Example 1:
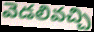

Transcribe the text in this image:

వెడలివచ్చి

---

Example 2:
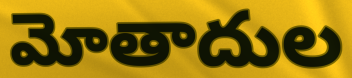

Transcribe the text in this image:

మోతాదుల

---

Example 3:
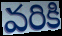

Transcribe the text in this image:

వరికి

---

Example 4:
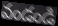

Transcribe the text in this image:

వండండి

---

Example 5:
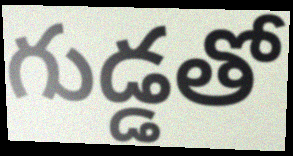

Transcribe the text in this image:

గుడ్డతో